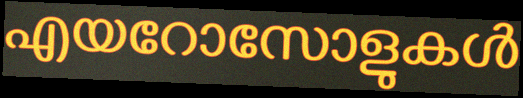
എയറോസോളുകൾ